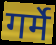
गर्मे